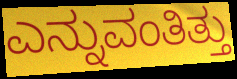
ಎನ್ನುವಂತಿತ್ತು